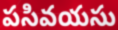
పసివయసు